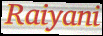
Raiyani